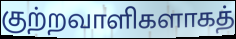
குற்றவாளிகளாகத்